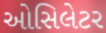
ઓસિલેટર